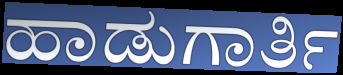
ಹಾಡುಗಾರ್ತಿ